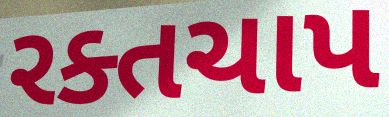
રક્તચાપ